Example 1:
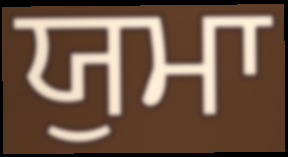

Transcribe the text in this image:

ਯੁਮਾ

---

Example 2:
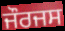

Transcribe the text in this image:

ਜੌਰਜਸ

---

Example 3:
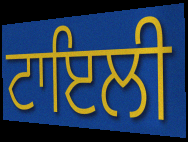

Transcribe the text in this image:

ਟਾਇਲੀ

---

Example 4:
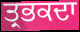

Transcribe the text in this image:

ਤ੍ਰਭਕਦਾ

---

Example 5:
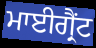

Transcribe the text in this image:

ਮਾਈਗ੍ਰੈਂਟ